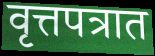
वृत्तपत्रात